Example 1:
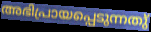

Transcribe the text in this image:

അഭിപ്രായപ്പെടുന്നതു്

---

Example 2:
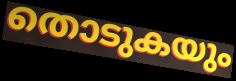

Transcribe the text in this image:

തൊടുകയും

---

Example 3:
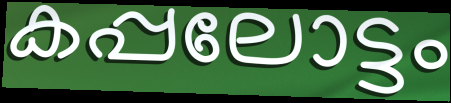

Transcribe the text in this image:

കപ്പലോട്ടം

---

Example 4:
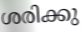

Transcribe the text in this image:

ശരിക്കു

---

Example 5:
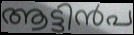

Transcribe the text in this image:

ആട്ടിൻപ